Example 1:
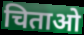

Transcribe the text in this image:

चिताओ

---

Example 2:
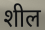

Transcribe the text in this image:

शील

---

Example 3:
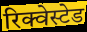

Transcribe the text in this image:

रिक्वेस्टेड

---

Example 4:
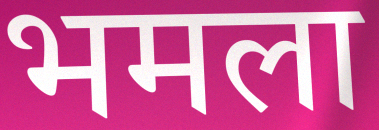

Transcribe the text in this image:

भमला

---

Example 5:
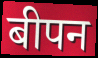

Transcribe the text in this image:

बीपन